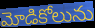
మోడికోలును